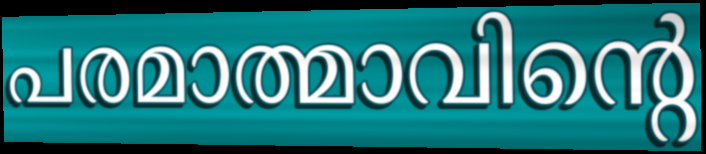
പരമാത്മാവിന്റെ